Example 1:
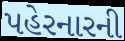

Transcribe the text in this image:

પહેરનારની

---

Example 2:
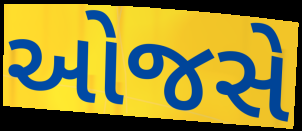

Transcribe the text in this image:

ઓજસે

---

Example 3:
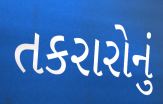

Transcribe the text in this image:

તકરારોનું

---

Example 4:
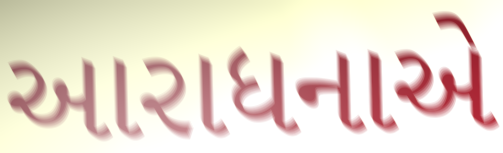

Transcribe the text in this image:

આરાધનાએ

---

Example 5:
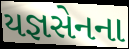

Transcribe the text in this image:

યજ્ઞસેનના